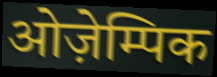
ओज़ेम्पिक